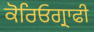
ਕੋਰਿਓਗ੍ਰਾਫੀ